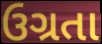
ઉગ્રતા